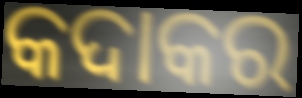
କଦାକର